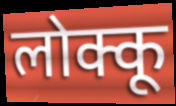
लोक्कू